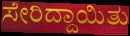
ಸೇರಿದ್ದಾಯಿತು